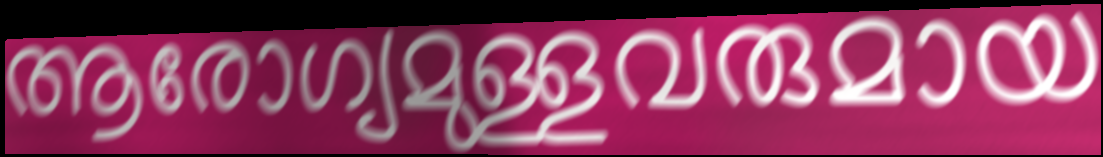
ആരോഗ്യമുള്ളവരുമായ